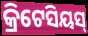
କ୍ରିଟେସିୟସ୍